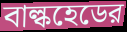
বাল্কহেডের